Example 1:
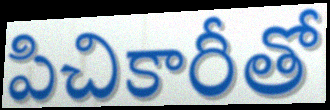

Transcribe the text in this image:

పిచికారీతో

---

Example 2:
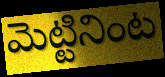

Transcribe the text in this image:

మెట్టినింట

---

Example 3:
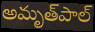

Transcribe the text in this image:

అమృత్‌పాల్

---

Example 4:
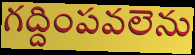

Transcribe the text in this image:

గద్దింపవలెను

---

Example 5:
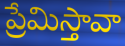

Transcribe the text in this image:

ప్రేమిస్తావా